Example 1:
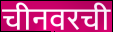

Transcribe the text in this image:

चीनवरची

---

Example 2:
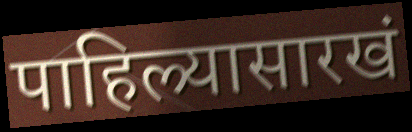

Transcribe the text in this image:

पाहिल्यासारखं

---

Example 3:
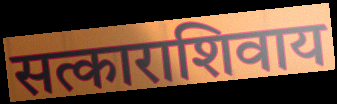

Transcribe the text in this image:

सत्काराशिवाय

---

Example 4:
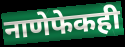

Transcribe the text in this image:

नाणेफेकही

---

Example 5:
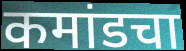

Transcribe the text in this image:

कमांडचा